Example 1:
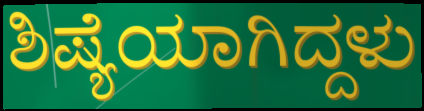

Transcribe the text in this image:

ಶಿಷ್ಯೆಯಾಗಿದ್ದಳು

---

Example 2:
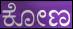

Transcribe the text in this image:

ಕೋಣ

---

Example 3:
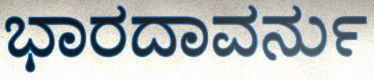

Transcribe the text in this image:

ಭಾರದಾವರ್ನು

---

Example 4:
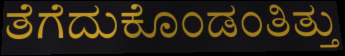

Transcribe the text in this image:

ತೆಗೆದುಕೊಂಡಂತಿತ್ತು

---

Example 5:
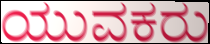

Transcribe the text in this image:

ಯುವಕರು